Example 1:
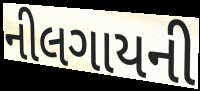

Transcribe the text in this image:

નીલગાયની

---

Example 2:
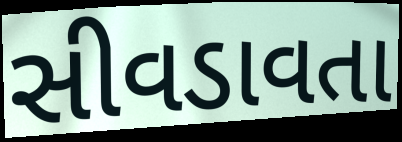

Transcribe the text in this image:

સીવડાવતા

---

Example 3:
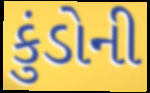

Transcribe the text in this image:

કુંડોની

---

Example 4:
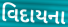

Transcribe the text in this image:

વિદાયના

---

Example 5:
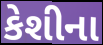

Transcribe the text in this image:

કેશીના